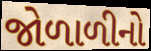
જોળાળીનો